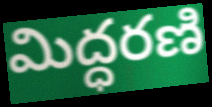
మిద్ధరణి